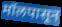
मॉलपासून